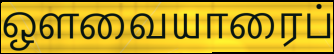
ஔவையாரைப்